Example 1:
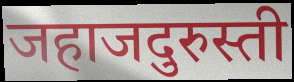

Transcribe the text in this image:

जहाजदुरुस्ती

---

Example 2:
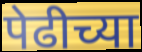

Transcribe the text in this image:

पेढीच्या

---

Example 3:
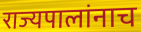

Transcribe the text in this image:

राज्यपालांनाच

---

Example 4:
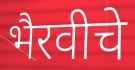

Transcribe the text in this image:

भैरवीचे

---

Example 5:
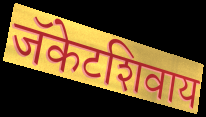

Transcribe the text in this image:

जॅकेटशिवाय